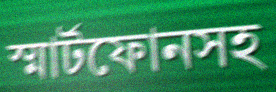
স্মার্টফোনসহ